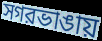
সগরভাঙায়